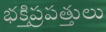
భక్తిప్రపత్తులు